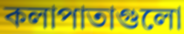
কলাপাতাগুলো